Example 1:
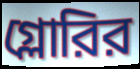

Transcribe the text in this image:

গ্লোরির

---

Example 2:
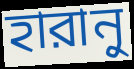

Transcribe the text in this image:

হারানু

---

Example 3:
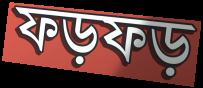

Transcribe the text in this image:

ফড়ফড়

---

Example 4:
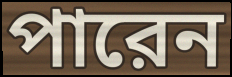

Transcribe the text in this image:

পারেন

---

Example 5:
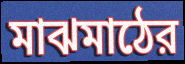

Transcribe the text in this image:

মাঝমাঠের